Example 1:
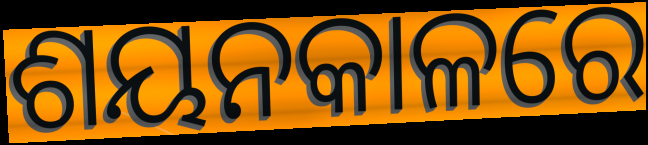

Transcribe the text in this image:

ଶୟନକାଳରେ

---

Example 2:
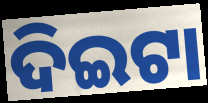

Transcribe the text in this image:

ଦିଇଟା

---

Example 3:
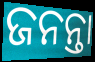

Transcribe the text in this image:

ଜନନ୍ତା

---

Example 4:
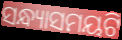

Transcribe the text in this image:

ସନ୍ଧ୍ୟାସମୟଟି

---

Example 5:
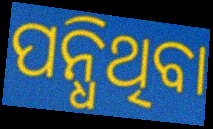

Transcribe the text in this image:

ପନ୍ଧିଥିବା